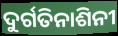
ଦୁର୍ଗତିନାଶିନୀ